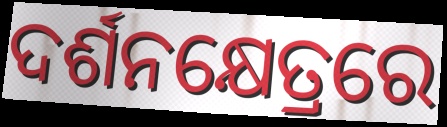
ଦର୍ଶନକ୍ଷେତ୍ରରେ